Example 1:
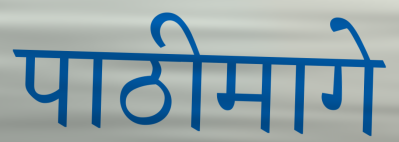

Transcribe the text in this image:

पाठीमागे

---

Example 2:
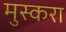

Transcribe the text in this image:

मुस्करा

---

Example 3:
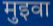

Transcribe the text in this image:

मुइवा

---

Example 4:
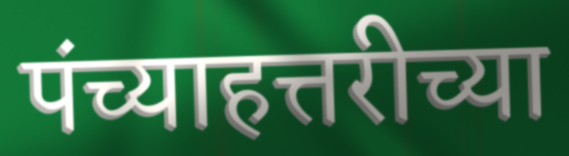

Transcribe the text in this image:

पंच्याहत्तरीच्या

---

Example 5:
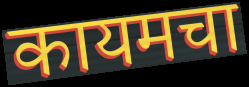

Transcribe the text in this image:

कायमचा